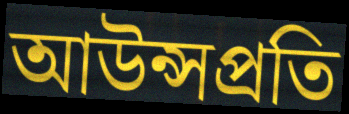
আউন্সপ্রতি